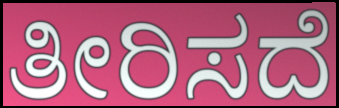
ತೀರಿಸದೆ